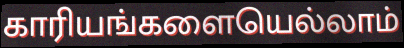
காரியங்களையெல்லாம்